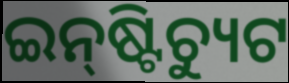
ଇନ୍‍ଷ୍ଟିଚ୍ୟୁଟ